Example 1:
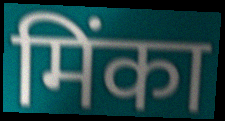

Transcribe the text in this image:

मिंका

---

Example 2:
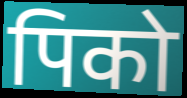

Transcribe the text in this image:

पिको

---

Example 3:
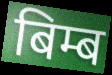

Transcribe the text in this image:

बिम्ब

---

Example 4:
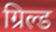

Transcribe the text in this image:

ग्रिल्ड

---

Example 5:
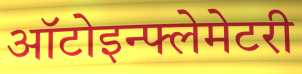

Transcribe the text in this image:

ऑटोइन्फ्लेमेटरी